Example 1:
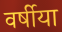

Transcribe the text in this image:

वर्षीया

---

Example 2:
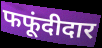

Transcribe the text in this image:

फफूंदीदार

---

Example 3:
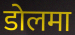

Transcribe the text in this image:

डोलमा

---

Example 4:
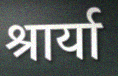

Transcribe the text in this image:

श्रार्या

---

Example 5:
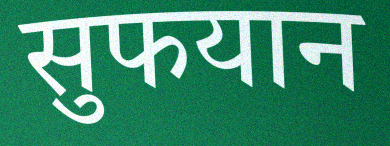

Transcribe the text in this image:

सुफयान